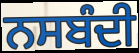
ਨਸਬੰਦੀ